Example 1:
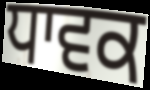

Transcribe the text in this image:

ਧਾਵਕ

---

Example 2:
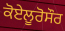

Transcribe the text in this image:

ਕੋਏਲੂਰੋਸੌਰ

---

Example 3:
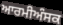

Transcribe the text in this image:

ਆਰਮੀਅੰਸਕ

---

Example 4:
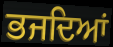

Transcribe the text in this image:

ਭਜਦਿਆਂ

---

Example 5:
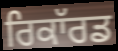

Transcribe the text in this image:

ਰਿਕਾੱਰਡ